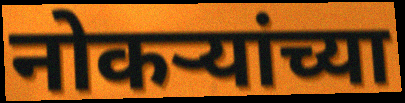
नोकर्‍यांच्या